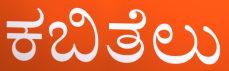
ಕಬಿತೆಲು